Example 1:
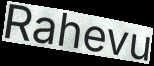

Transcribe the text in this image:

Rahevu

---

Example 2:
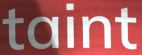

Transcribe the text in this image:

taint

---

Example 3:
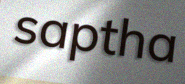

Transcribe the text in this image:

saptha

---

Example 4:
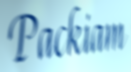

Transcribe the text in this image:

Packiam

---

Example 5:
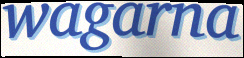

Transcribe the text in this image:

wagarna